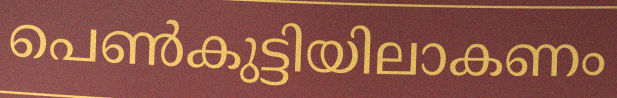
പെൺകുട്ടിയിലാകണം